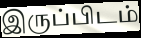
இருப்பிடம்